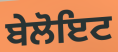
ਬੇਲੋਇਟ